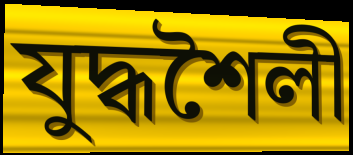
যুদ্ধশৈলী